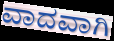
ವಾದವಾಗಿ